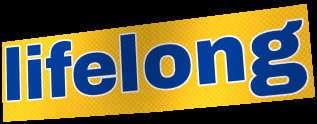
lifelong